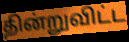
தின்றுவிட்ட